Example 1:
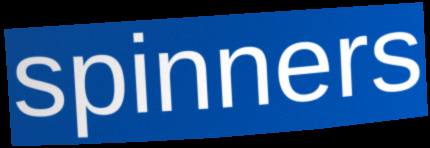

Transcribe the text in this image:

spinners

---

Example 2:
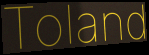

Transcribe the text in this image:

Toland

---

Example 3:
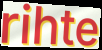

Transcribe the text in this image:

rihte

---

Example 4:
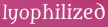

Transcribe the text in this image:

lyophilized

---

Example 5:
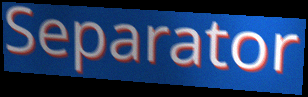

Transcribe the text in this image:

Separator